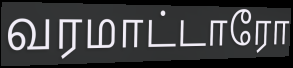
வரமாட்டாரோ